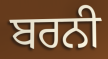
ਬਰਨੀ